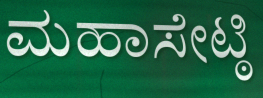
ಮಹಾಸೇಟ್ಠಿ